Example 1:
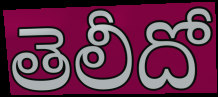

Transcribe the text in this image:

తెలీదో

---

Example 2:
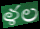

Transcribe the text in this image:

ళల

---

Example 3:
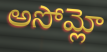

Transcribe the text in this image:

అసోమ్లో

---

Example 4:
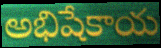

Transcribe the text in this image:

అభిషేకాయ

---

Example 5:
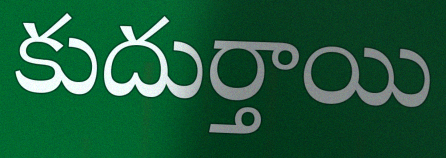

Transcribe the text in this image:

కుదుర్తాయి